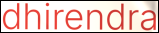
dhirendra